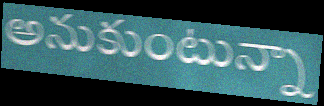
అనుకుంటున్నా